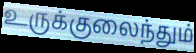
உருக்குலைந்தும்